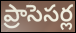
ప్రాసెసర్ల